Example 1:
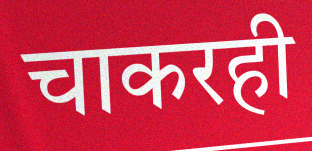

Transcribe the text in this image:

चाकरही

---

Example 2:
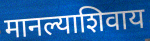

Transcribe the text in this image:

मानल्याशिवाय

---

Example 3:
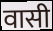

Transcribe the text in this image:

वासी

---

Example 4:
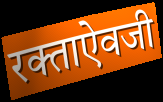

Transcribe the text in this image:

रक्ताऐवजी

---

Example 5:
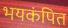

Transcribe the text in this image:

भयकंपित